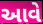
આવે